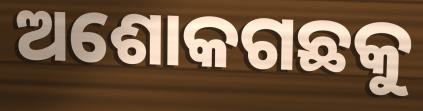
ଅଶୋକଗଛକୁ